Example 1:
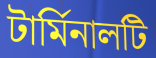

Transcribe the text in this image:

টার্মিনালটি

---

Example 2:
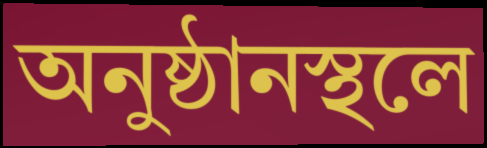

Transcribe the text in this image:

অনুষ্ঠানস্থলে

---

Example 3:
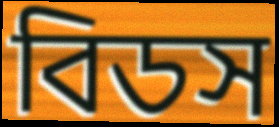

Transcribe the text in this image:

বিডস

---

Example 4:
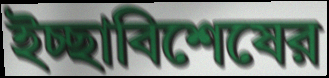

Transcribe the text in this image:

ইচ্ছাবিশেষের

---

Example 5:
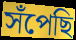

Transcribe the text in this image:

সঁপেছি